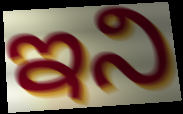
ఇని